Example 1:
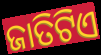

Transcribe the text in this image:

ଜାତିଟିଏ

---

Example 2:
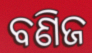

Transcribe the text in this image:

ବଣିଜ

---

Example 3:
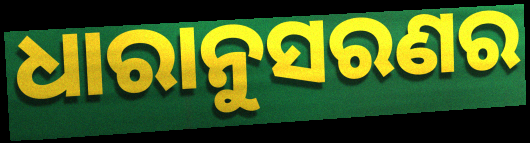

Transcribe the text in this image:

ଧାରାନୁସରଣର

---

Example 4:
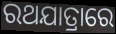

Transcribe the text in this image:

ରଥଯାତ୍ରାରେ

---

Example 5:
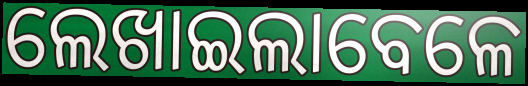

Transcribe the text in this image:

ଲେଖାଇଲାବେଳେ